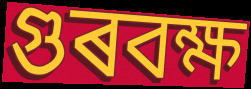
গুৰবক্ষ